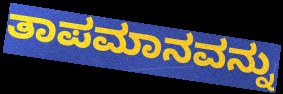
ತಾಪಮಾನವನ್ನು